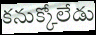
కనుక్కోలేడు